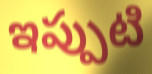
ఇప్పుటి